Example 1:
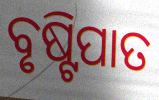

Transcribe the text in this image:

ବୃଷ୍ଟିପାତ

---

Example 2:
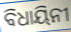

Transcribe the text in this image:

ବିଧାୟିନୀ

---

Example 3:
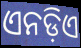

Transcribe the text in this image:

ଏନଡ଼ିଏ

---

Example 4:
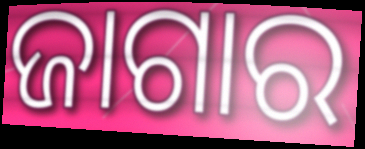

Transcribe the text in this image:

ଜାଗାର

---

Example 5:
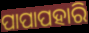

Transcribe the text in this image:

ପାପାପହାରି